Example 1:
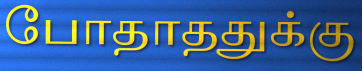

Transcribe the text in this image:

போதாததுக்கு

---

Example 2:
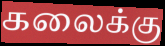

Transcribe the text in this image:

கலைக்கு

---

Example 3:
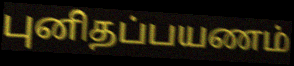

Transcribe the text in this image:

புனிதப்பயணம்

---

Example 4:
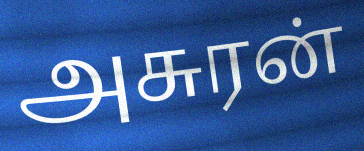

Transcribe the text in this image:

அசுரன்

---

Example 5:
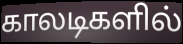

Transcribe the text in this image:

காலடிகளில்